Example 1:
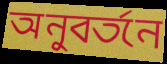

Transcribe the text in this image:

অনুবর্তনে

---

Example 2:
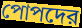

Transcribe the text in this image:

পোপদের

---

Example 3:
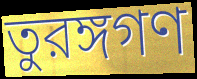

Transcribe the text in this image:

তুরঙ্গগণ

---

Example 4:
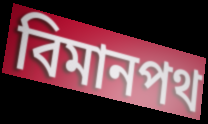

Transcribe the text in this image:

বিমানপথ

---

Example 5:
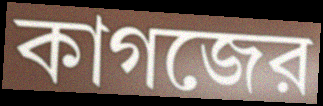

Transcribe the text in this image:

কাগজের